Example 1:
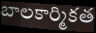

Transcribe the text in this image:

బాలకార్మికత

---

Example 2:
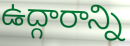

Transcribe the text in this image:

ఉద్గారాన్ని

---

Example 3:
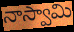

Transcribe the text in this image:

నాస్వామి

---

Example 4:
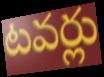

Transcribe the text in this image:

టవర్లు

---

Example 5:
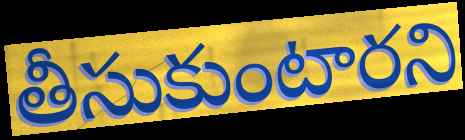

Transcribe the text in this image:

తీసుకుంటారని